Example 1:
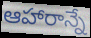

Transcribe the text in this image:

ఆహారాన్నే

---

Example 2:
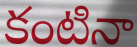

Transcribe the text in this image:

కంటినా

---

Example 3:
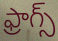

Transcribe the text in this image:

ఫ్రాగ్స్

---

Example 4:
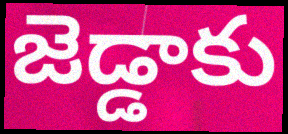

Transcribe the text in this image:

జెడ్డాకు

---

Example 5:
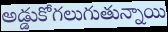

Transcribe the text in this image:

అడ్డుకోగలుగుతున్నాయి